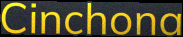
Cinchona